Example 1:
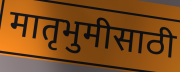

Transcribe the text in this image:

मातृभुमीसाठी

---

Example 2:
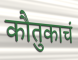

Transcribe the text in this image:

कौतुकाचं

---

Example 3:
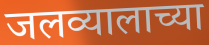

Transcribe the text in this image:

जलव्यालाच्या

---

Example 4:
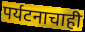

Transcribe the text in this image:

पर्यटनाचाही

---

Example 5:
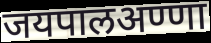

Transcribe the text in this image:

जयपालअण्णा